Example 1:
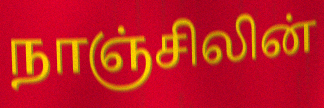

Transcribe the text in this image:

நாஞ்சிலின்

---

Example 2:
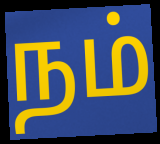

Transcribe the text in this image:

நம்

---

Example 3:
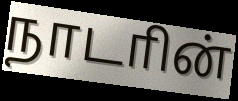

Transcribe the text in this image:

நாடரின்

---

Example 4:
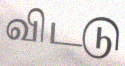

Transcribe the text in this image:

விடடு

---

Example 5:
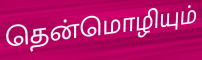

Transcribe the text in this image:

தென்மொழியும்